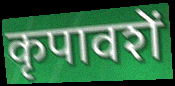
कृपावशें